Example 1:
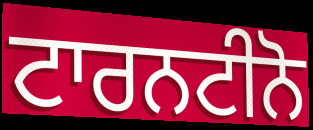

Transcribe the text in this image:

ਟਾਰਨਟੀਨੋ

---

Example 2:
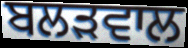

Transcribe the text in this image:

ਬਲੜਵਾਲ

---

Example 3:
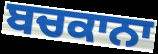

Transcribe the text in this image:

ਬਚਕਾਨਾ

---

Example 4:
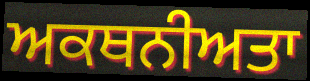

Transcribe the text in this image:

ਅਕਥਨੀਅਤਾ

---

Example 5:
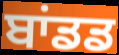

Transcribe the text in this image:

ਬਾਂਡਡ